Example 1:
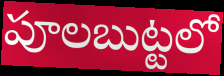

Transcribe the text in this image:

పూలబుట్టలో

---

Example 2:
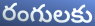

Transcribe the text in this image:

రంగులకు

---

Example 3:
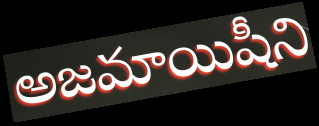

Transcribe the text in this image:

అజమాయిషీని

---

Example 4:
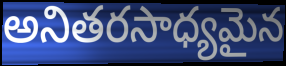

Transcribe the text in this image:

అనితరసాధ్యమైన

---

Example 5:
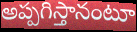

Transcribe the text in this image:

అప్పగిస్తానంటూ